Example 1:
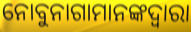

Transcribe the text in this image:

ନୋବୁନାଗାମାନଙ୍କଦ୍ୱାରା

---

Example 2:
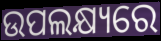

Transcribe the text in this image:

ଉପଲକ୍ଷ୍ୟରେ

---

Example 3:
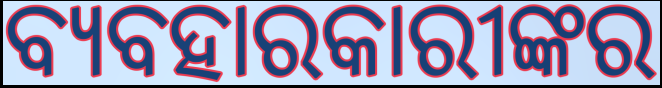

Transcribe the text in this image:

ବ୍ୟବହାରକାରୀଙ୍କର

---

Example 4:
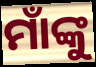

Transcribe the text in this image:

ମାଁଙ୍କୁ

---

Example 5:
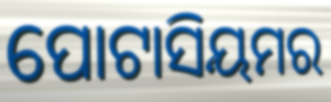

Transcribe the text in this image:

ପୋଟାସିୟମର